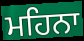
ਮਹਿਨਾ